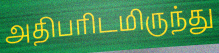
அதிபரிடமிருந்து